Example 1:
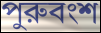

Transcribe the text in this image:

পুরুবংশ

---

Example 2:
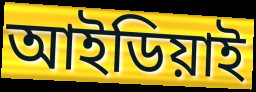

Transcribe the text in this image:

আইডিয়াই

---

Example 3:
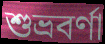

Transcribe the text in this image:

শুভ্রবর্ণা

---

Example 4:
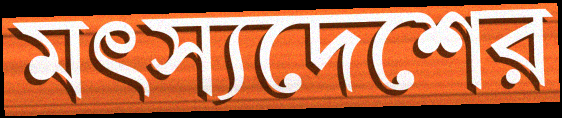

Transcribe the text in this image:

মৎস্যদেশের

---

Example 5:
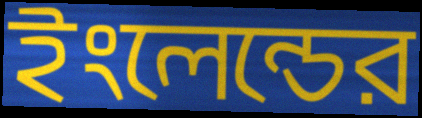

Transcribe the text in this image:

ইংলেন্ডের